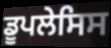
ਡੂਪਲੇਸਿਸ